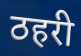
ठहरी